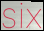
six